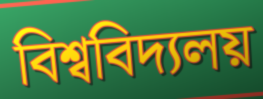
বিশ্ববিদ্যলয়